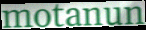
motanun